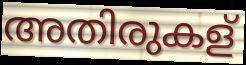
അതിരുകള്